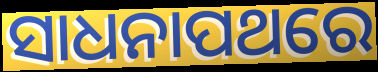
ସାଧନାପଥରେ